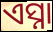
ଏସ୍ନା